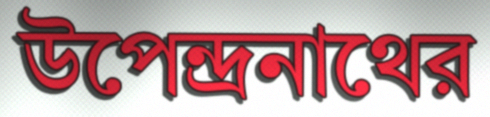
উপেন্দ্রনাথের